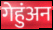
गेहुंअन